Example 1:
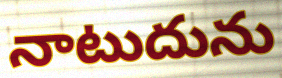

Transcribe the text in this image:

నాటుదును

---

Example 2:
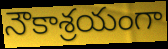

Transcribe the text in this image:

నౌకాశ్రయంగా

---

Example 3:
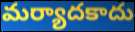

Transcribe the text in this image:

మర్యాదకాదు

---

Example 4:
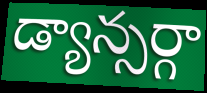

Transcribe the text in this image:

డ్యాన్సర్గా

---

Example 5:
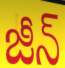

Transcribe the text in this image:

జీన్